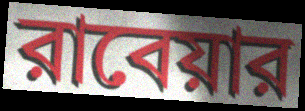
রাবেয়ার